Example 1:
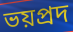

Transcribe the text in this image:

ভয়প্রদ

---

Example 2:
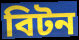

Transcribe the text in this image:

বিটন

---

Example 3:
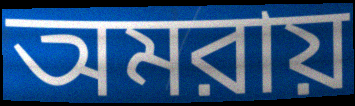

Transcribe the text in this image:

অমরায়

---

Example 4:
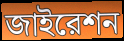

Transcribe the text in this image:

জাইরেশন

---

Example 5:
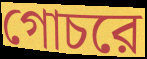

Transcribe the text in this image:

গোচরে